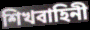
শিখবাহিনী